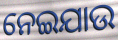
ନେଇଯାଉ